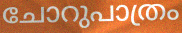
ചോറുപാത്രം